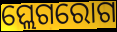
ପ୍ଲେଗରୋଗ